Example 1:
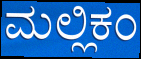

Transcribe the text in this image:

ಮಲ್ಲಿಕಂ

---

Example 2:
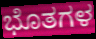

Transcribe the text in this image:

ಭೊತಗಳ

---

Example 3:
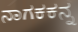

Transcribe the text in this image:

ನಾಗಕಕನ್ನ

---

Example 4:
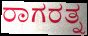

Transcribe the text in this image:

ರಾಗರತ್ನ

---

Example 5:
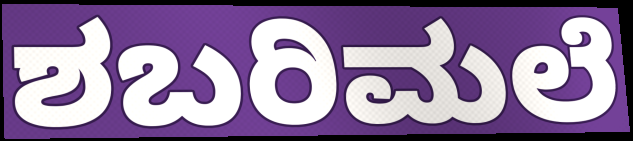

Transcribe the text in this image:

ಶಬರಿಮಲೆ